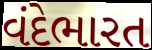
વંદેભારત